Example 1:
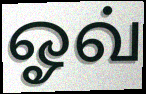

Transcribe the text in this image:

ஓவ்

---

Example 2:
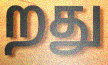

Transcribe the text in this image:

றது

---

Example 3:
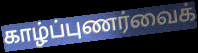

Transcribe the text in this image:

காழ்ப்புணர்வைக்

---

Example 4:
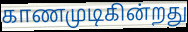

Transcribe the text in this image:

காணமுடிகின்றது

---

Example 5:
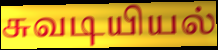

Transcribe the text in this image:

சுவடியியல்